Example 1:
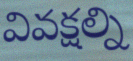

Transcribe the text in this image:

వివక్షల్ని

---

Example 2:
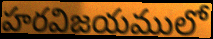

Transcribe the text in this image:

హరవిజయములో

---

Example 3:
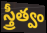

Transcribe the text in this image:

స్త్రీత్వం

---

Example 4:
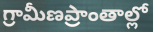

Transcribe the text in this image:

గ్రామీణప్రాంతాల్లో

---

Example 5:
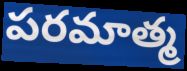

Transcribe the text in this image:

పరమాత్మ